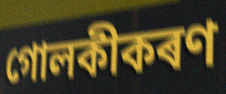
গোলকীকৰণ